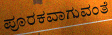
ಪೂರಕವಾಗುವಂತೆ